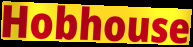
Hobhouse